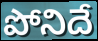
పోనిదే